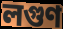
লগুণ